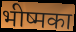
भीष्मका